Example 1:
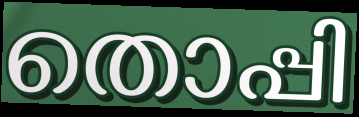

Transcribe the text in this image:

തൊപ്പി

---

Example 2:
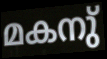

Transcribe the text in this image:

മകനു്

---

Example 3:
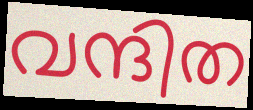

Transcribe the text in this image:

വന്ദിത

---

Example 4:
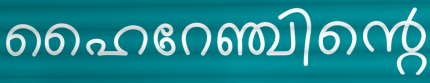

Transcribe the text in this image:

ഹൈറേഞ്ചിന്റെ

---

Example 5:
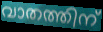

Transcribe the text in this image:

വാതത്തിന്